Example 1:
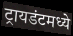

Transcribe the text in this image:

ट्रायडंटमध्ये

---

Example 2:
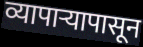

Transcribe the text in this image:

व्यापाऱ्यापासून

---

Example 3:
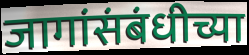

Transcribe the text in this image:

जागांसंबंधीच्या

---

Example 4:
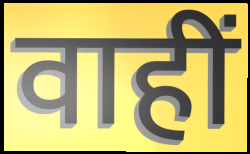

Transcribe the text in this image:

वाहीं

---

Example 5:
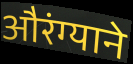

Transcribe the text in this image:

औरंग्याने